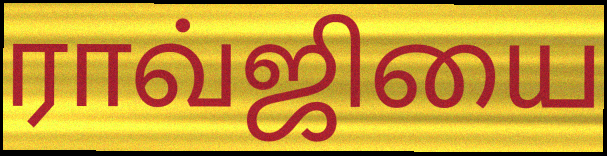
ராவ்ஜியை